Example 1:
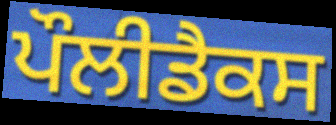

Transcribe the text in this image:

ਪੌਲੀਡੈਕਸ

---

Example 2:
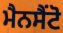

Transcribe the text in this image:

ਮੈਨਸੈਂਟੋ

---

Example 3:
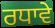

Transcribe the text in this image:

ਰਧਾਵੇ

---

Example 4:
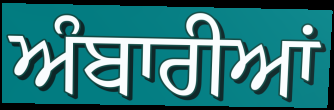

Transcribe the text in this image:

ਅੰਬਾਰੀਆਂ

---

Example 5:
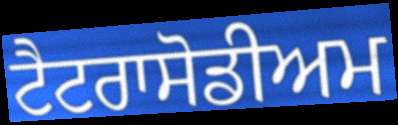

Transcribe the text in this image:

ਟੈਟਰਾਸੋਡੀਅਮ